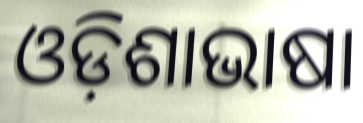
ଓଡ଼ିଶାଭାଷା